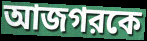
আজগরকে